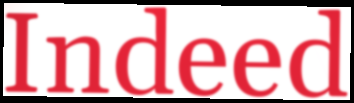
Indeed